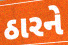
ઠારને